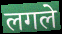
लगले